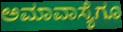
ಅಮಾವಾಸ್ಯೆಗೂ